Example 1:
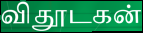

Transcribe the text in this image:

விதூடகன்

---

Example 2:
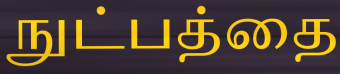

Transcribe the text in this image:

நுட்பத்தை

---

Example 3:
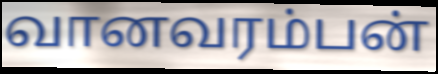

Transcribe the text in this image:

வானவரம்பன்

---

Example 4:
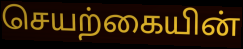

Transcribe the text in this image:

செயற்கையின்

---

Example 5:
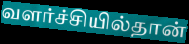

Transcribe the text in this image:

வளர்ச்சியில்தான்